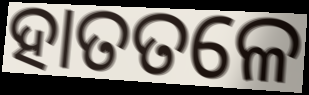
ହାତତଳେ